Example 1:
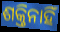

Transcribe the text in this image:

ଶକ୍ତିନାହିଁ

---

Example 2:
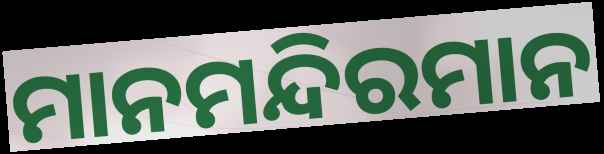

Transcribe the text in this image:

ମାନମନ୍ଦିରମାନ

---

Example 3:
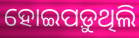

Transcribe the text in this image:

ହୋଇପଡ଼ୁଥିଲି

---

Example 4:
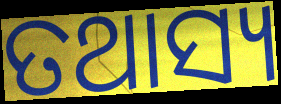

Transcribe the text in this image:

ତଥାସ୍ୟ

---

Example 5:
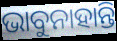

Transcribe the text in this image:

ଭାବୁନାହାନ୍ତି